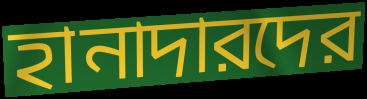
হানাদারদের